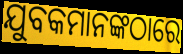
ଯୁବକମାନଙ୍କଠାରେ